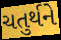
ચતુર્થને